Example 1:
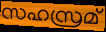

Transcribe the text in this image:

സഹസ്രമ്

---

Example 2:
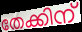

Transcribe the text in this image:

തേക്കിന്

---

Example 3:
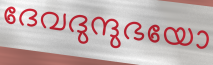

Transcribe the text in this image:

ദേവദുന്ദുഭയോ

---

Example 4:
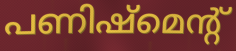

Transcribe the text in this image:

പണിഷ്മെന്റ്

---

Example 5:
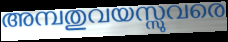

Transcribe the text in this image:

അമ്പതുവയസ്സുവരെ